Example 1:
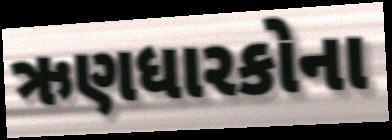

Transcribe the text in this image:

ઋણધારકોના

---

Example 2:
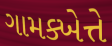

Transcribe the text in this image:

ગામક્ખેત્તે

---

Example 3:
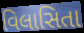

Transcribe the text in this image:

વિલાસિતા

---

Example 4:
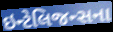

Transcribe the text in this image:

ઇન્ટેલિજન્સના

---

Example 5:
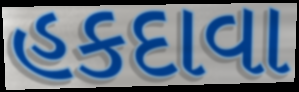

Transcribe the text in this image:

હકદાવા